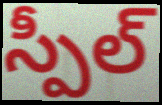
స్పీల్